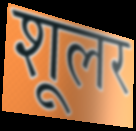
शूलर